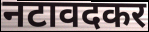
नटावदकर